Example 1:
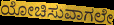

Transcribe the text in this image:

ಯೋಚಿಸುವಾಗಲೇ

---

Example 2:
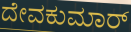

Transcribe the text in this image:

ದೇವಕುಮಾರ್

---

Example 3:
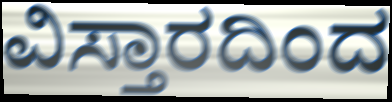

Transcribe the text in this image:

ವಿಸ್ತಾರದಿಂದ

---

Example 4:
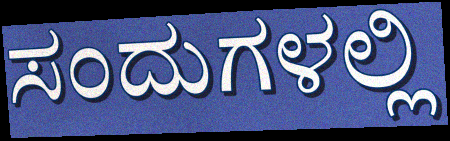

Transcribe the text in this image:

ಸಂದುಗಳಲ್ಲಿ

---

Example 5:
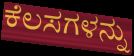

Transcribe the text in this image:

ಕೆಲಸಗಳನ್ನು